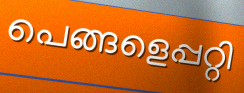
പെങ്ങളെപ്പറ്റി